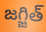
జగ్జిత్